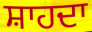
ਸ਼ਾਹਦਾ